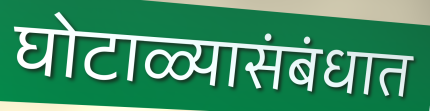
घोटाळ्यासंबंधात